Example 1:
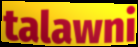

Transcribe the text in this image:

talawni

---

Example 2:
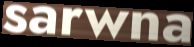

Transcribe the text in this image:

sarwna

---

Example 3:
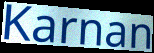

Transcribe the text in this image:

Karnan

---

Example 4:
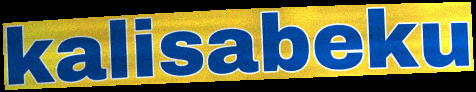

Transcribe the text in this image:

kalisabeku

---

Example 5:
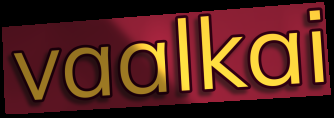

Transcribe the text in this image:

vaalkai